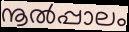
നൂൽപ്പാലം